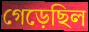
গেড়েছিল